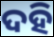
ଦହି